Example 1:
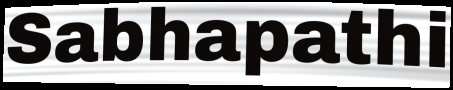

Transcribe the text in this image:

Sabhapathi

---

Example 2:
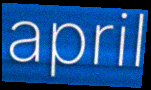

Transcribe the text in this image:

april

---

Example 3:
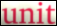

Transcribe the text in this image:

unit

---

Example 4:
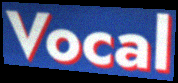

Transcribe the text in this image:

Vocal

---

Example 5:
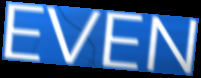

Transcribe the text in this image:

EVEN